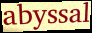
abyssal